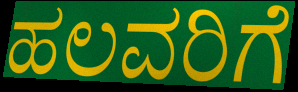
ಹಲವರಿಗೆ